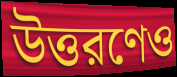
উত্তরণেও